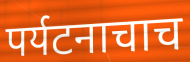
पर्यटनाचाच